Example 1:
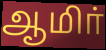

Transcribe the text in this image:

ஆமிர்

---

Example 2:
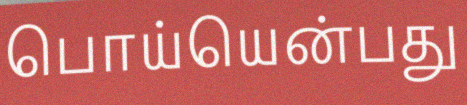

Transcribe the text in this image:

பொய்யென்பது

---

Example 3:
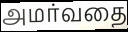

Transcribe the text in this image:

அமர்வதை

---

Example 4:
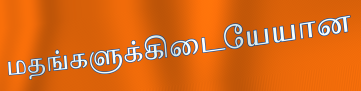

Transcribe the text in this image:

மதங்களுக்கிடையேயான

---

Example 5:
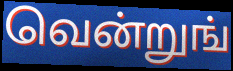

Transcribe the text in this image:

வென்றுங்